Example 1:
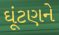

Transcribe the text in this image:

ઘૂંટણને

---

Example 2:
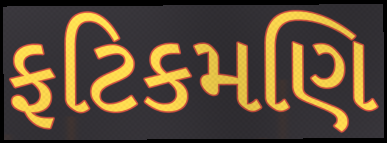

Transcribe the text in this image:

ફટિકમણિ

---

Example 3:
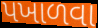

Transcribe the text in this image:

પખાળવા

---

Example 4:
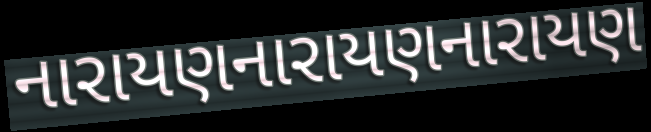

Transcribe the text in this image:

નારાયણનારાયણનારાયણ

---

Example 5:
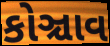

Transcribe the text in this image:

કોઞ્ચાવ